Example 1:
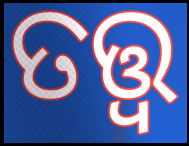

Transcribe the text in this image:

ତତ୍ତ୍ବ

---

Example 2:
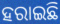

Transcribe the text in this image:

ହରାଇଛି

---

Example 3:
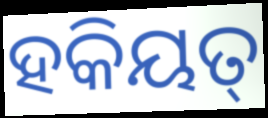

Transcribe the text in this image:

ହକିୟତ୍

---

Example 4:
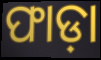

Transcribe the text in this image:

ଫାଡ଼ା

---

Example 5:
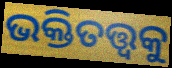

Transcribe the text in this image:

ଭକ୍ତିତତ୍ତ୍ୱକୁ